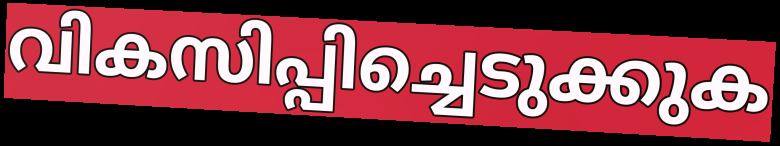
വികസിപ്പിച്ചെടുക്കുക